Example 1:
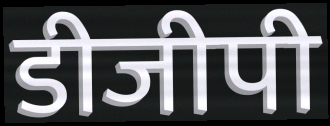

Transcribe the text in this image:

डीजीपी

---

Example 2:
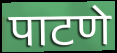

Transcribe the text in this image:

पाटणे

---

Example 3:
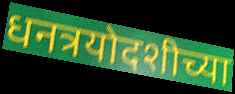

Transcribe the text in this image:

धनत्रयोदशीच्या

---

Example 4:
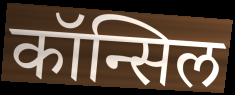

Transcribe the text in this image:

कॉन्सिल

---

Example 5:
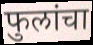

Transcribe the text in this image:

फुलांचा